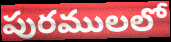
పురములలో